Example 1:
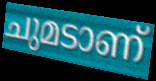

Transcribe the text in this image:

ചുമടാണ്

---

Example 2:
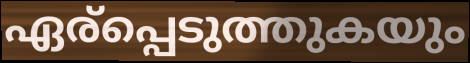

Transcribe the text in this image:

ഏര്പ്പെടുത്തുകയും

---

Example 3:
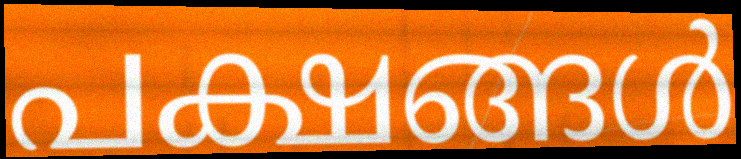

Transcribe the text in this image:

പക്ഷങ്ങൾ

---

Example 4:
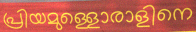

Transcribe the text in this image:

പ്രിയമുള്ളൊരാളിനെ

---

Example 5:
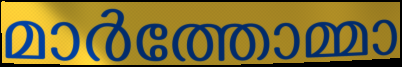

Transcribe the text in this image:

മാർത്തോമ്മാ